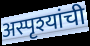
अस्पृश्यांची